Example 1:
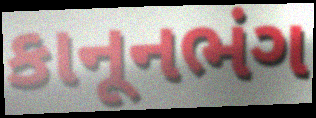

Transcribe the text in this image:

કાનૂનભંગ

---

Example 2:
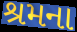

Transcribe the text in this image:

શ્રમના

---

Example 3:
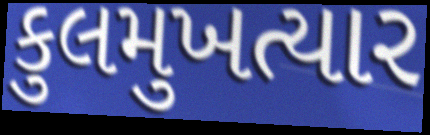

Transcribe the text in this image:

કુલમુખત્યાર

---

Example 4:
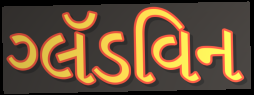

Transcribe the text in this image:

ગ્લૅડવિન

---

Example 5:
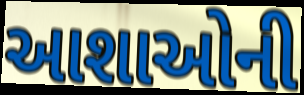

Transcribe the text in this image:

આશાઓની